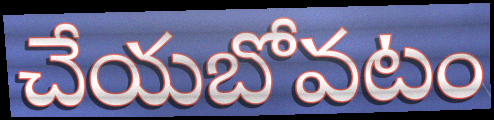
చేయబోవటం